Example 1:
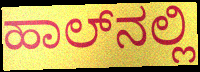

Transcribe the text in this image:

ಹಾಲ್‌ನಲ್ಲಿ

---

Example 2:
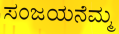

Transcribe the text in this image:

ಸಂಜಯನೆಮ್ಮ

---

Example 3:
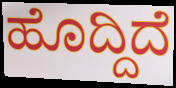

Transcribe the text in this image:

ಹೊದ್ದಿದೆ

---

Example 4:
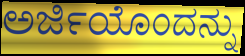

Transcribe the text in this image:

ಅರ್ಜಿಯೊಂದನ್ನು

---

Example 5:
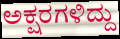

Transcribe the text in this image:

ಅಕ್ಷರಗಳಿದ್ದು